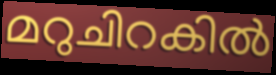
മറുചിറകിൽ